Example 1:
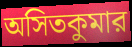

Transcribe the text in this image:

অসিতকুমার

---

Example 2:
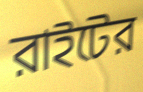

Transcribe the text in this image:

রাইটের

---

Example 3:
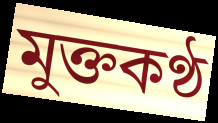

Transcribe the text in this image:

মুক্তকণ্ঠ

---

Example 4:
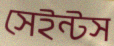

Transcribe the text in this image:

সেইন্টস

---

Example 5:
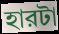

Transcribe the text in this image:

হারটা